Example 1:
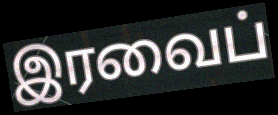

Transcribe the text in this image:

இரவைப்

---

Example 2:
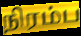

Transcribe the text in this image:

நிரம்ப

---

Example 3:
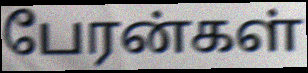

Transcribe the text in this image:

பேரன்கள்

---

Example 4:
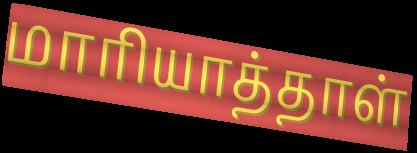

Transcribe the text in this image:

மாரியாத்தாள்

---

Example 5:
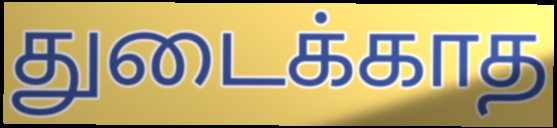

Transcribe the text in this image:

துடைக்காத